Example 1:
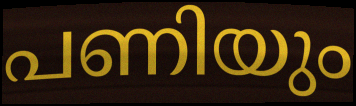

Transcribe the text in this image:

പണിയും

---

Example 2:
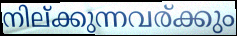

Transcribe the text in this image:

നില്ക്കുന്നവര്ക്കും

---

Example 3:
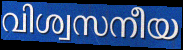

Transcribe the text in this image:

വിശ്വസനീയ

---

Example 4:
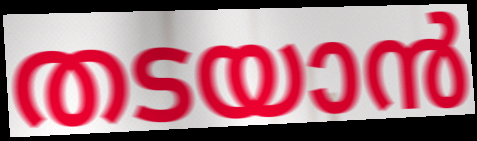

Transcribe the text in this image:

തടയാൻ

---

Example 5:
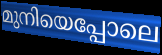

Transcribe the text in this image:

മുനിയെപ്പോലെ